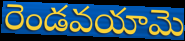
రెండవయామె